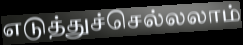
எடுத்துச்செல்லலாம்